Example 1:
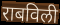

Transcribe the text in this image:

राबविली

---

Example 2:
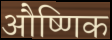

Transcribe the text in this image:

औष्णिक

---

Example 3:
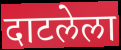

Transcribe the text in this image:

दाटलेला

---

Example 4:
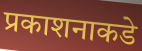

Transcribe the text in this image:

प्रकाशनाकडे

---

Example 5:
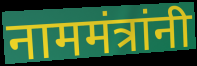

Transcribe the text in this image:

नाममंत्रांनी